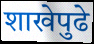
शाखेपुढे